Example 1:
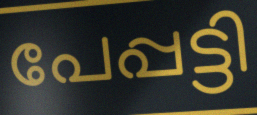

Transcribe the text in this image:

പേപ്പട്ടി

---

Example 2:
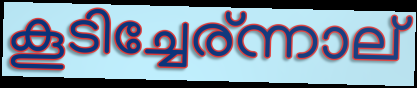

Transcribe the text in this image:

കൂടിച്ചേര്ന്നാല്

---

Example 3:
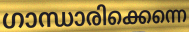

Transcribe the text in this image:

ഗാന്ധാരിക്കെന്നെ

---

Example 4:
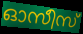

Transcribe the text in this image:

ഓസീസ്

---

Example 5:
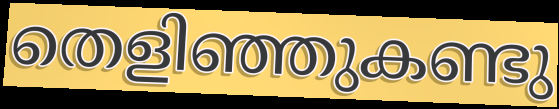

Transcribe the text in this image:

തെളിഞ്ഞുകണ്ടു